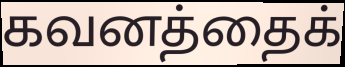
கவனத்தைக்